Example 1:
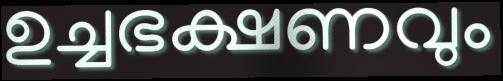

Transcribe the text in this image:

ഉച്ചഭക്ഷണവും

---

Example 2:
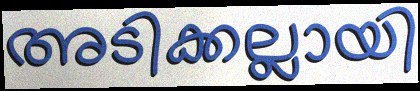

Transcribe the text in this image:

അടിക്കല്ലായി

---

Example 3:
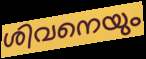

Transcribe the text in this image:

ശിവനെയും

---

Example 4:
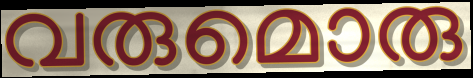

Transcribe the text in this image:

വരുമൊരു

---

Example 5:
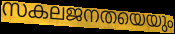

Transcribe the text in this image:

സകലജനതയെയും